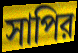
সাপির